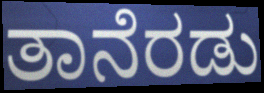
ತಾನೆರಡು